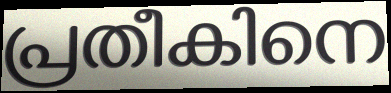
പ്രതീകിനെ